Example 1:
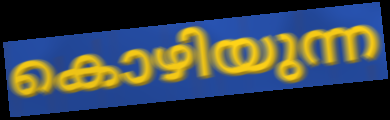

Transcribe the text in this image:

കൊഴിയുന്ന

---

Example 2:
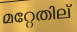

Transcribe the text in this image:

മറ്റേതില്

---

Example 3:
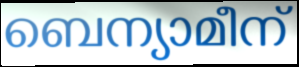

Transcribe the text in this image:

ബെന്യാമീന്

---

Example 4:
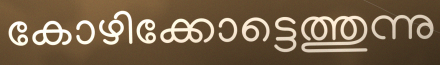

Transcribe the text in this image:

കോഴിക്കോട്ടെത്തുന്നു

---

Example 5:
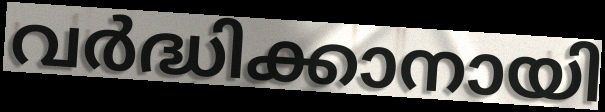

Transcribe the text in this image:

വർദ്ധിക്കാനായി